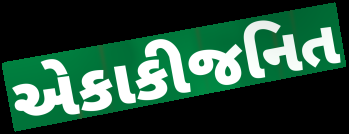
એકાકીજનિત